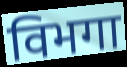
विभगा